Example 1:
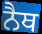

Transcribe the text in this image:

ਨੈਥ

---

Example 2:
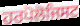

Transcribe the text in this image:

ਹਰਪੋਲੋਜਿਸਟ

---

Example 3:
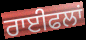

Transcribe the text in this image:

ਰਾਈਫਲਾਂ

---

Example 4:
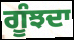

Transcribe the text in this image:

ਗੂੰਝਦਾ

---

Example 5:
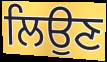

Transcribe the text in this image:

ਲਿਉਣ